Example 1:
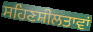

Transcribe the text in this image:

ਸਹਿਣਸ਼ੀਲਤਾਵਾਂ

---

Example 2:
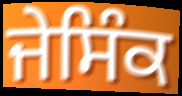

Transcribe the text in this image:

ਜੇਸਿੰਕ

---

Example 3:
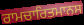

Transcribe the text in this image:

ਰਾਮਚਾਰਿਤਮਾਨਸ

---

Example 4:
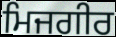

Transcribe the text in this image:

ਮਿਜਗੀਰ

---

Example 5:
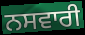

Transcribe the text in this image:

ਨਸਵਾਰੀ